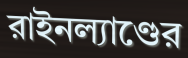
রাইনল্যাণ্ডের